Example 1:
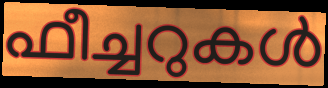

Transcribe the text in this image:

ഫീച്ചറുകൾ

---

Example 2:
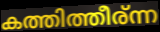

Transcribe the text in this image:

കത്തിത്തീര്ന്ന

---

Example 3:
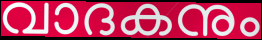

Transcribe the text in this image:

വാദകനും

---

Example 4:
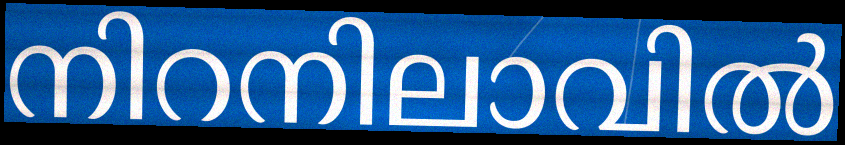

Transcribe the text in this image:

നിറനിലാവിൽ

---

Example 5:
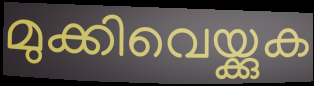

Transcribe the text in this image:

മുക്കിവെയ്ക്കുക